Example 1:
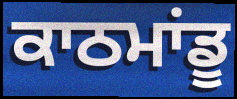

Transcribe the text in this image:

ਕਾਠਮਾਂਡੂ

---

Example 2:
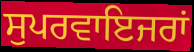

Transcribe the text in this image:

ਸੁਪਰਵਾਇਜਰਾਂ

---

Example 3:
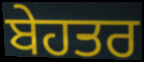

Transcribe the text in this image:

ਬੇਹਤਰ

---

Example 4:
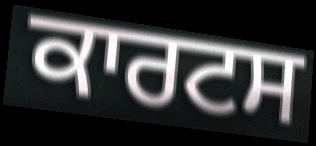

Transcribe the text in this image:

ਕਾਰਟਸ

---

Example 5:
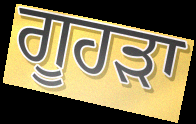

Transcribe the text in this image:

ਗੂਹੜਾ